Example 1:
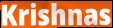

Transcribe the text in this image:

Krishnas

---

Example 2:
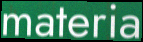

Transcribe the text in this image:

materia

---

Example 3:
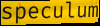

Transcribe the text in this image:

speculum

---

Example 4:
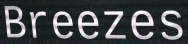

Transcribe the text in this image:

Breezes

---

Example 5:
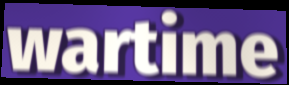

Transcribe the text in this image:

wartime